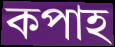
কপাহ